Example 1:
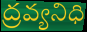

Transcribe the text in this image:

ద్రవ్యనిధి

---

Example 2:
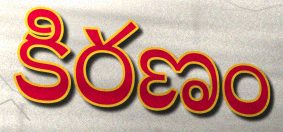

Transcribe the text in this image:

కిరణం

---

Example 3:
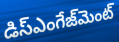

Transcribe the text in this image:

డిస్ఎంగేజ్‌మెంట్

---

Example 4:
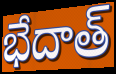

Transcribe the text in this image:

భేదాత్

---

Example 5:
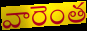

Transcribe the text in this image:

వారెంత